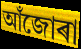
আঁজোৰা